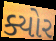
ક્યોર